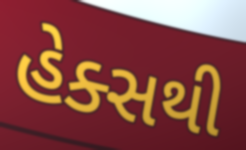
હેક્સથી